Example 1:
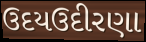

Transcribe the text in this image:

ઉદયઉદીરણા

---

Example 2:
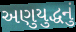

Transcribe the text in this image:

અણુયુદ્ધનું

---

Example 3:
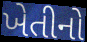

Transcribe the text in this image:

ખેતીનો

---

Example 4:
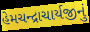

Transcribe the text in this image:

હેમચન્દ્રાચાર્યજીનું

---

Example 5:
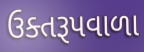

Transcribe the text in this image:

ઉક્તરૂપવાળા